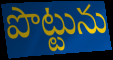
పొట్టును